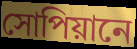
সোপিয়ানে